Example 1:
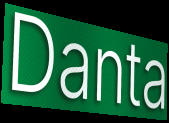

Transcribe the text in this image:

Danta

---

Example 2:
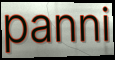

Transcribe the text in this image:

panni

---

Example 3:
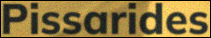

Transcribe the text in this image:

Pissarides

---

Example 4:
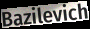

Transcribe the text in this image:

Bazilevich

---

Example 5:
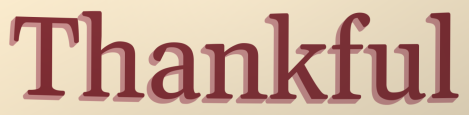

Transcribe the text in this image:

Thankful